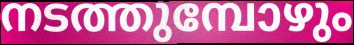
നടത്തുമ്പോഴും